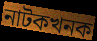
নাটকখনক